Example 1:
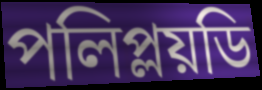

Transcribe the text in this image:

পলিপ্লয়ডি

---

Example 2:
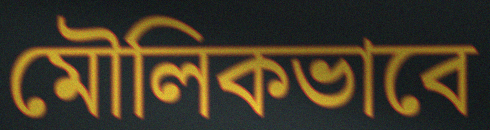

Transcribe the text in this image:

মৌলিকভাবে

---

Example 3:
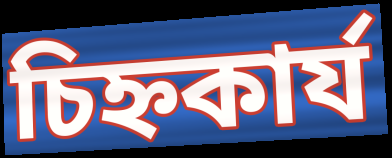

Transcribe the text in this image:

চিহ্নকার্য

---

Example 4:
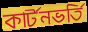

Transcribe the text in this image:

কার্টনভর্তি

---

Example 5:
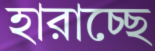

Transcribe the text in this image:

হারাচ্ছে